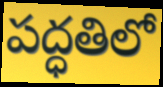
పద్ధతిలో